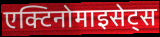
एक्टिनोमाइसेट्स